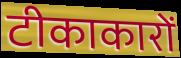
टीकाकारों